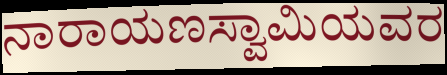
ನಾರಾಯಣಸ್ವಾಮಿಯವರ